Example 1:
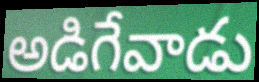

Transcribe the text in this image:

అడిగేవాడు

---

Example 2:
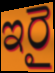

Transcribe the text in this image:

ఇరై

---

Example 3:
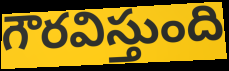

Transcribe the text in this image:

గౌరవిస్తుంది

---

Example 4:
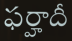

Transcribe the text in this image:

ఫర్హాదీ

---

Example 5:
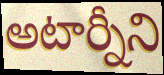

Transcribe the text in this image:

అటార్నీని